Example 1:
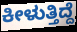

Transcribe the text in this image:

ಕೀಳುತ್ತಿದ್ದೆ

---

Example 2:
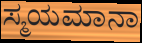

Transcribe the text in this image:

ಸ್ಮಯಮಾನಾ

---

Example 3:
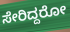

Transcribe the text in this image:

ಸೇರಿದ್ದರೋ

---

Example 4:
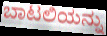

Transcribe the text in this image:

ಬಾಟಲಿಯನ್ನು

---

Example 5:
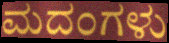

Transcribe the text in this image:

ಮದಂಗಳು